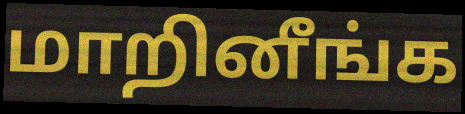
மாறினீங்க